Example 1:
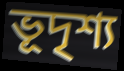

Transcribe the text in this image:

ভূদৃশ্য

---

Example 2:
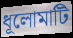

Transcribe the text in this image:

ধূলোমাটি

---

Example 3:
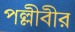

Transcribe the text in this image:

পল্লীবীর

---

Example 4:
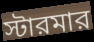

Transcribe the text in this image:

স্টারমার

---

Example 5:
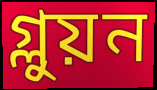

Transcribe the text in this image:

গ্লুয়ন